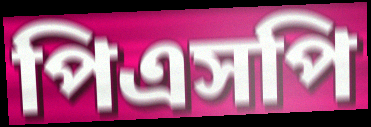
পিএসপি